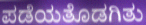
ಪಡೆಯತೊಡಗಿತು